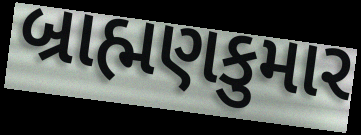
બ્રાહ્મણકુમાર